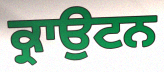
ਕ੍ਰਾਉਟਨ